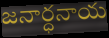
జనార్ధనాయ